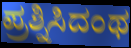
ಪ್ರಶ್ನಿಸಿದಂಥ